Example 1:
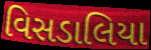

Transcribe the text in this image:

વિસડાલિયા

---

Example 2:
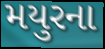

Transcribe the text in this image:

મયુરના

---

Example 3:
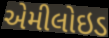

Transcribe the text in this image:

એમીલોઇડ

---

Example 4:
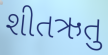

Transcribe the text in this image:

શીતઋતુ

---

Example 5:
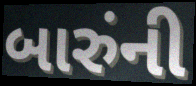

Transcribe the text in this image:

બારુંની